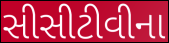
સીસીટીવીના